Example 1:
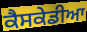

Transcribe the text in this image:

ਕੈਸਕੇਡੀਆ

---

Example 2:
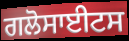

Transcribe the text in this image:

ਗਲੋਸਾਈਟਸ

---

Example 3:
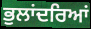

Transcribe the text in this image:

ਭੁਲਾਂਦਰਿਆਂ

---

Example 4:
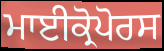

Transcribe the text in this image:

ਮਾਈਕ੍ਰੋਪੋਰਸ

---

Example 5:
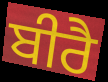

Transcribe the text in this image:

ਬੀਰੈ